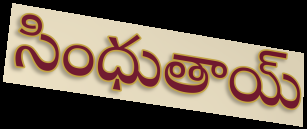
సింధుతాయ్